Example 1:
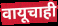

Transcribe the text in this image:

वायूचाही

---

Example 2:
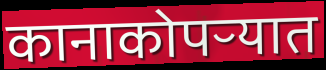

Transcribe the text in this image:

कानाकोपऱ्यात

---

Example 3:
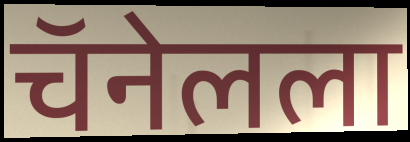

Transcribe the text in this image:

चॅनेलला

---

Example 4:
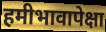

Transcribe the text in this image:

हमीभावापेक्षा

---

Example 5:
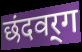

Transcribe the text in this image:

छंदवर्ग